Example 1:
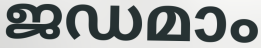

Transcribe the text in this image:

ജഡമാം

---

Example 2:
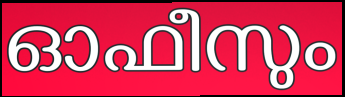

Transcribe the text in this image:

ഓഫീസും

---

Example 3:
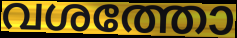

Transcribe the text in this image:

വശത്തോ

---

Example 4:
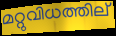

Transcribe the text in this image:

മറ്റുവിധത്തില്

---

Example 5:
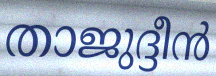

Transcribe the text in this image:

താജുദ്ദീൻ